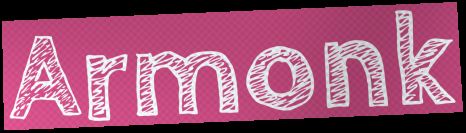
Armonk